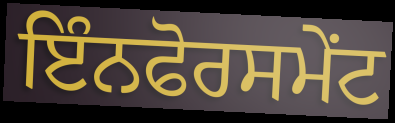
ਇੰਨਫੋਰਸਮੇਂਟ